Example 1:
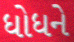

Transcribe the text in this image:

ધોધને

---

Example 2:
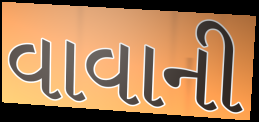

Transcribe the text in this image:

વાવાની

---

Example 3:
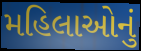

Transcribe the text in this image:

મહિલાઓનું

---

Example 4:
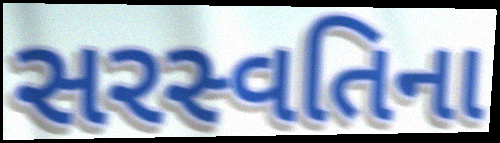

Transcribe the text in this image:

સરસ્વતિના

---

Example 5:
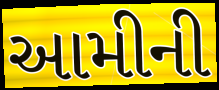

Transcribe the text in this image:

આમીની